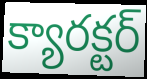
క్యారక్టర్